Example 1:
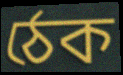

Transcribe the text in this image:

ঠেক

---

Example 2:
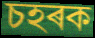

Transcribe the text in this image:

চহৰক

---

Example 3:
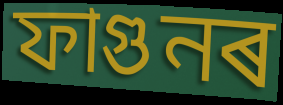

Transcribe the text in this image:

ফাগুনৰ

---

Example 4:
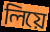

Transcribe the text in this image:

লিয়ে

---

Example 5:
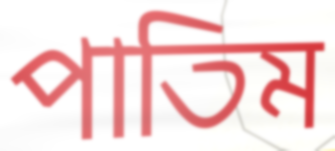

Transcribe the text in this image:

পাতিম